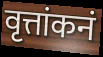
वृत्तांकनं